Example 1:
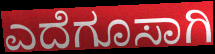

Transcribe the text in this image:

ಎದೆಗೂಸಾಗಿ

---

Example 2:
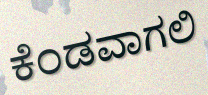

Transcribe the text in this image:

ಕೆಂಡವಾಗಲಿ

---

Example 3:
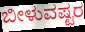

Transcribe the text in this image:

ಬೀಳುವಷ್ಟರ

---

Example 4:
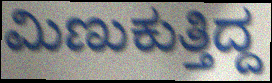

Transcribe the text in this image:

ಮಿಣುಕುತ್ತಿದ್ದ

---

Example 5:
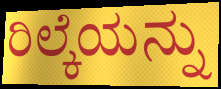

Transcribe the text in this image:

ರಿಲ್ಕೆಯನ್ನು